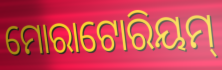
ମୋରାଟୋରିୟମ୍